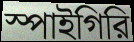
স্পাইগিরি